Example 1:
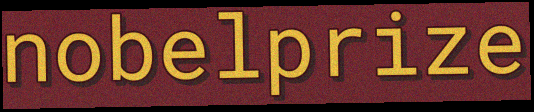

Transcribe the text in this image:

nobelprize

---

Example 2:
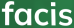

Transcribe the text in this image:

facis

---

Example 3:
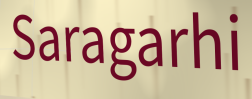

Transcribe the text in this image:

Saragarhi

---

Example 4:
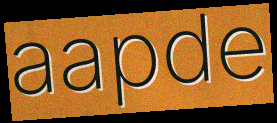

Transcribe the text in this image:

aapde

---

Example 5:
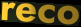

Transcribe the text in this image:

reco